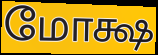
மோக்ஷ